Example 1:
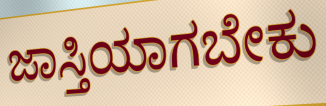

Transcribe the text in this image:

ಜಾಸ್ತಿಯಾಗಬೇಕು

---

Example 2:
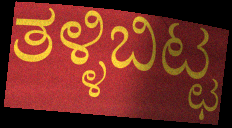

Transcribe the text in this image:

ತಳ್ಳಿಬಿಟ್ಟ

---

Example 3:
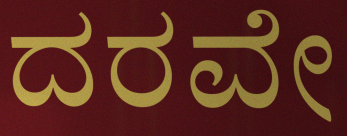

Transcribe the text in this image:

ದರವೇ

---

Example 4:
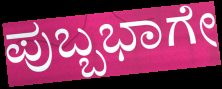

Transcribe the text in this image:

ಪುಬ್ಬಭಾಗೇ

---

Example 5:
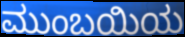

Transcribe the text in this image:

ಮುಂಬಯಿಯ